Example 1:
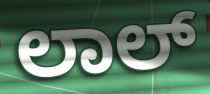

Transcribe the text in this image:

ಲಾಲ್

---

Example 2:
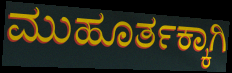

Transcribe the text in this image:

ಮುಹೂರ್ತಕ್ಕಾಗಿ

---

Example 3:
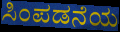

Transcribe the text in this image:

ಸಿಂಪಡನೆಯ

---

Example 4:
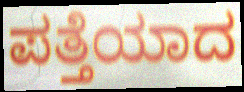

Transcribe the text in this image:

ಪತ್ತೆಯಾದ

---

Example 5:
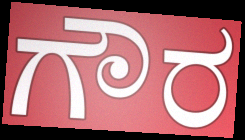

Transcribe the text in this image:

ಗೌರ